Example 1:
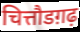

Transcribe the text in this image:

चित्तौडग़ढ़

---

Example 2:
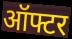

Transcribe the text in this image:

ऑफ्टर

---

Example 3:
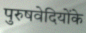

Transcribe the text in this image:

पुरुषवेदियोंके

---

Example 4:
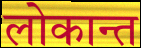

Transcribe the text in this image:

लोकान्त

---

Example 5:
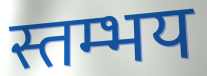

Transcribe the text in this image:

स्तम्भय